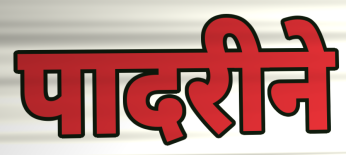
पादरीने